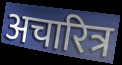
अचारित्र